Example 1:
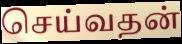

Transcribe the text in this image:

செய்வதன்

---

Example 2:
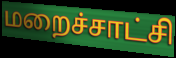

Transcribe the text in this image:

மறைச்சாட்சி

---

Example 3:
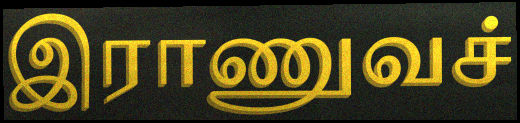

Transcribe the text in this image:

இராணுவச்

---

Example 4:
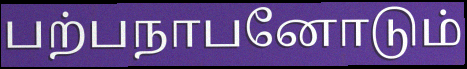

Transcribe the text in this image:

பற்பநாபனோடும்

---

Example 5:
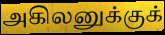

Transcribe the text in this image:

அகிலனுக்குக்